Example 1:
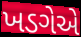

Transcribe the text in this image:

ખડગેએ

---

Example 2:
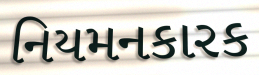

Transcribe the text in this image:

નિયમનકારક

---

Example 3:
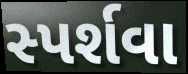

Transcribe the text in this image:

સ્પર્શવા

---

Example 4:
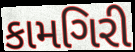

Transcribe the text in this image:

કામગિરી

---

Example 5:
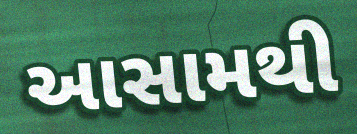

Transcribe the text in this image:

આસામથી